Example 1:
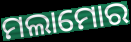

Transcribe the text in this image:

ମଲାମୋର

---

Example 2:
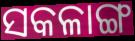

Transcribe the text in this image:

ସକଳାଙ୍ଗ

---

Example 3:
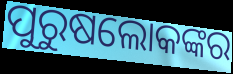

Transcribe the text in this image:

ପୁରୁଷଲୋକଙ୍କର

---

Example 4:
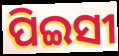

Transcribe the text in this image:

ପିଇସୀ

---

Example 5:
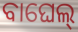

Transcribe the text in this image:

ବାଘେଲ୍